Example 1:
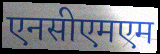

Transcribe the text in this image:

एनसीएमएम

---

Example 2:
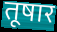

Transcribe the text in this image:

तूषार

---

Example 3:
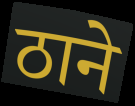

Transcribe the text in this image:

ठाने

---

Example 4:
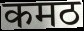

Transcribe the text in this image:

कमठ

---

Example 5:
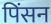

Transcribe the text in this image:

पिंसन